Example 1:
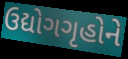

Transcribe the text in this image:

ઉદ્યોગગૃહોને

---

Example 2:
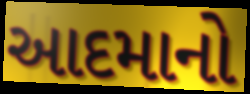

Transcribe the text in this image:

આદમાનો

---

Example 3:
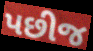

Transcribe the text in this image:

પછીજ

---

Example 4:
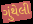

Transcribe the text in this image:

ગુંથેલી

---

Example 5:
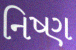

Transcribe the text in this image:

નિષ્ણ